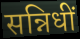
सन्निधीं